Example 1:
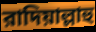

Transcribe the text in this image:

রাদিয়াল্লাহু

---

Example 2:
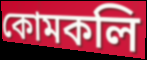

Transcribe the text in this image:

কোমকলি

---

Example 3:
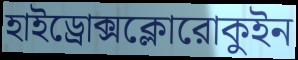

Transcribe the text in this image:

হাইড্রোক্সক্লোরোকুইন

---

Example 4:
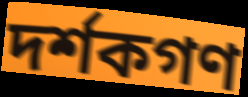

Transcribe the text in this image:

দর্শকগণ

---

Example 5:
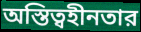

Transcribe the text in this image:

অস্তিত্বহীনতার